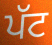
ਪੱਟ